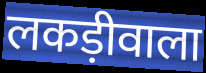
लकड़ीवाला